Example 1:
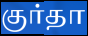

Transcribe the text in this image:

குர்தா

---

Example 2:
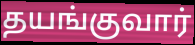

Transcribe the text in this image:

தயங்குவார்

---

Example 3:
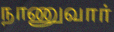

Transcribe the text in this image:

நாணுவார்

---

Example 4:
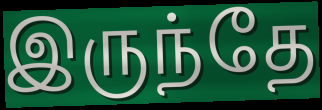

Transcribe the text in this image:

இருந்தே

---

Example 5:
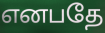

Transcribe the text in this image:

எனபதே